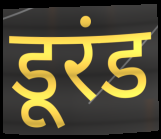
डूरंड